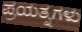
ಪ್ರಯತ್ನಗಳು